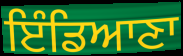
ਇੰਡਿਆਣਾ